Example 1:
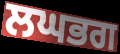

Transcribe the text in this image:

ਲਘਭਗ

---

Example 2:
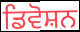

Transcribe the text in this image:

ਡਿਵੋਸ਼ਨ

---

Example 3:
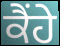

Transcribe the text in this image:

ਕੈਂਹੇ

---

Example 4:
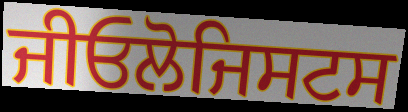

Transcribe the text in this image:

ਜੀਓਲੋਜਿਸਟਸ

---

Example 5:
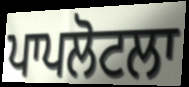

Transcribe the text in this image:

ਪਾਪਲੋਟਲਾ